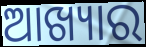
ଆଖ୍ୟାର